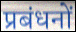
प्रबंधनों